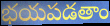
భయపడతాం